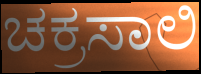
ಚಕ್ರಸಾಲಿ